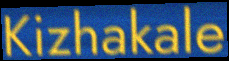
Kizhakale